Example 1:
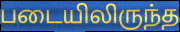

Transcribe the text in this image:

படையிலிருந்த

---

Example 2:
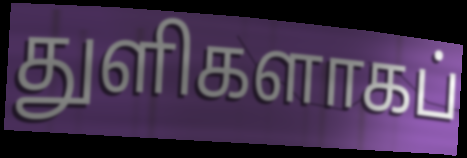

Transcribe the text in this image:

துளிகளாகப்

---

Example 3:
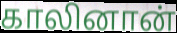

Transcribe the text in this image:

காலினான்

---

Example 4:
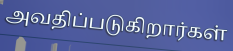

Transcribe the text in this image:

அவதிப்படுகிறார்கள்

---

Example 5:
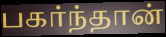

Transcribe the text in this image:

பகர்ந்தான்